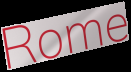
Rome